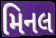
મિનલ